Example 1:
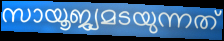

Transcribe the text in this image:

സായൂജ്യമടയുന്നത്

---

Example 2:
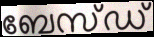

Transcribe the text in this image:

ബേസ്ഡ്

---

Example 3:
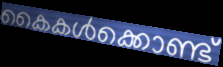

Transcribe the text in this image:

കൈകൾക്കൊണ്ട്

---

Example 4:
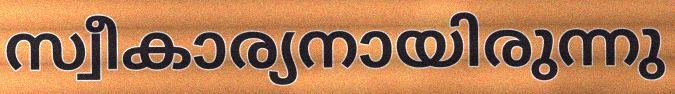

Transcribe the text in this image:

സ്വീകാര്യനായിരുന്നു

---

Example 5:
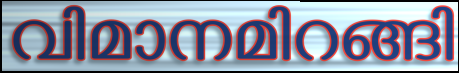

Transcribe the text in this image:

വിമാനമിറങ്ങി